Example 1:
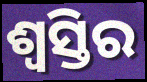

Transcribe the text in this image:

ଶ୍ୱସ୍ତିର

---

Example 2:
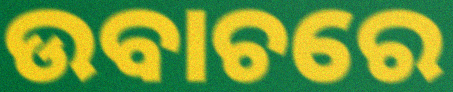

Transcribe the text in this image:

ଉବାଚରେ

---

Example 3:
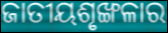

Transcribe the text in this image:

ଜାତୀୟଶୃଙ୍ଖଳାର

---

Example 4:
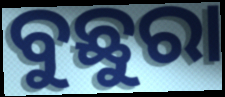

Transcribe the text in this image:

ବୁଛୁରା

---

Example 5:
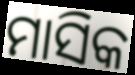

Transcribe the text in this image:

ମାସିକ